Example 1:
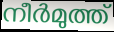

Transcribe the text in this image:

നീർമുത്ത്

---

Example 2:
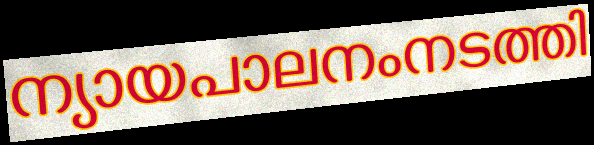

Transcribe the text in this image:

ന്യായപാലനംനടത്തി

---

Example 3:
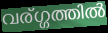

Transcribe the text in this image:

വര്ഗ്ഗത്തിൽ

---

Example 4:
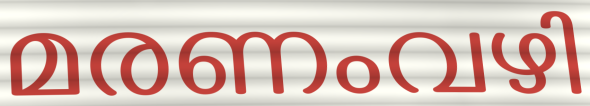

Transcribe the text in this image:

മരണംവഴി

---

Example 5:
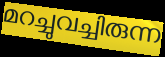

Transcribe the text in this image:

മറച്ചുവച്ചിരുന്ന